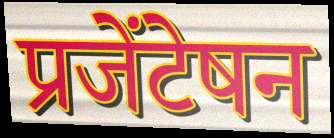
प्रजेंटेषन